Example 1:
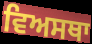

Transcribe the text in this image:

ਵਿਅਸਥਾ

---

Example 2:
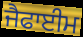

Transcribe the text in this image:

ਜੈਫਾਈਮ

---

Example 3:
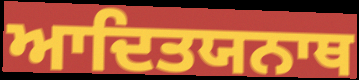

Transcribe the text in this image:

ਆਦਿਤਯਨਾਥ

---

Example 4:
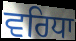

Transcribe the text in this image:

ਵਰਿਧਾ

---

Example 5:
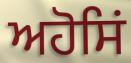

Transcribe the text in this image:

ਅਹੋਸਿਂ